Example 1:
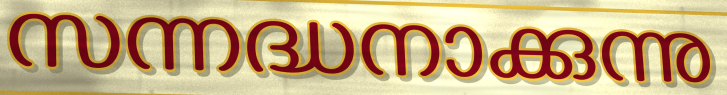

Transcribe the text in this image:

സന്നദ്ധനാക്കുന്നു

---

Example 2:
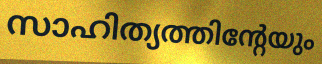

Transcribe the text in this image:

സാഹിത്യത്തിന്റേയും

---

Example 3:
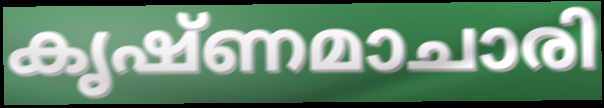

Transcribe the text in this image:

കൃഷ്ണമാചാരി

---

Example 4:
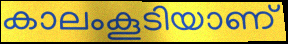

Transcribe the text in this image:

കാലംകൂടിയാണ്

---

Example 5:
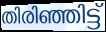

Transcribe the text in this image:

തിരിഞ്ഞിട്ട്